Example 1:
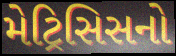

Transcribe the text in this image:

મેટ્રિસિસનો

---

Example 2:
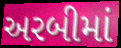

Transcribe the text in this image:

અરબીમાં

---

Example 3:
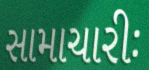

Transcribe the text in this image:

સામાચારીઃ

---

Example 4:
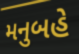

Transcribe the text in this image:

મનુબહે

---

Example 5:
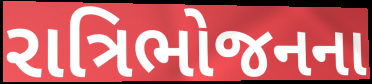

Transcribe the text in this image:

રાત્રિભોજનના